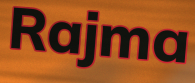
Rajma